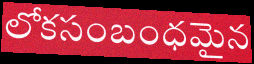
లోకసంబంధమైన